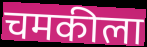
चमकीला